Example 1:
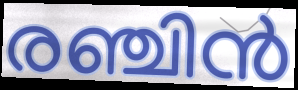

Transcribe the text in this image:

രഞ്ചിൻ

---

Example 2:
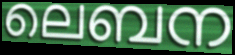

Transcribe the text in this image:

ലെബന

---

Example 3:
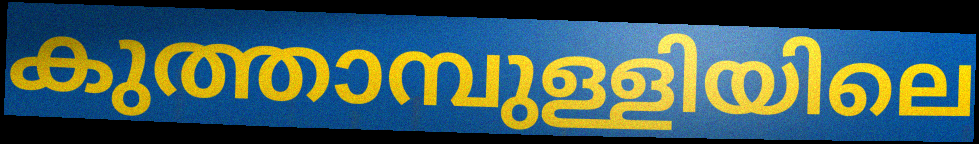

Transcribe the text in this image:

കുത്താമ്പുള്ളിയിലെ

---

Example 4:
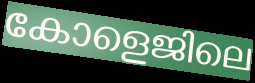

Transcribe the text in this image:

കോളെജിലെ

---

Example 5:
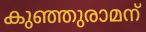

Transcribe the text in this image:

കുഞ്ഞുരാമന്